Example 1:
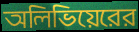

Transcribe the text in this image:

অলিভিয়েরের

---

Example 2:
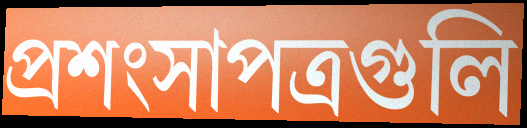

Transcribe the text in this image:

প্রশংসাপত্রগুলি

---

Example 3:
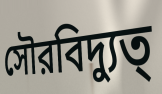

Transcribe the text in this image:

সৌরবিদ্যুত্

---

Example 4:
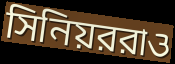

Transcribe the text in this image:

সিনিয়ররাও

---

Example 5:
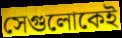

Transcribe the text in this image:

সেগুলোকেই